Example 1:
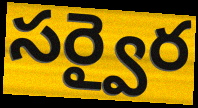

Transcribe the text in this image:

సర్వైర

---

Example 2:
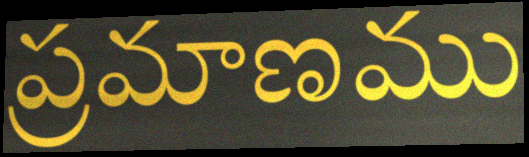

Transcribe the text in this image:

ప్రమాణము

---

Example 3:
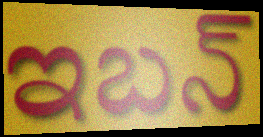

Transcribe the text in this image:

ఇబన్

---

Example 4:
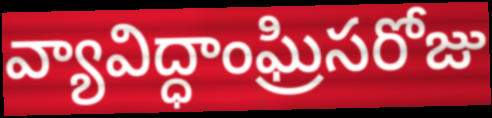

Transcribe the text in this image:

వ్యావిద్ధాంఘ్రిసరోజు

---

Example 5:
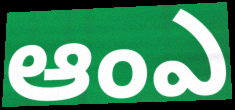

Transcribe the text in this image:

ఆంఎ